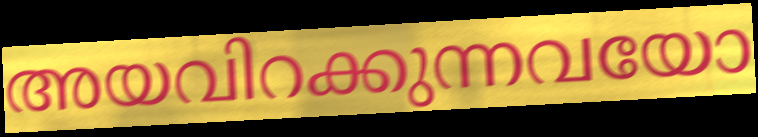
അയവിറക്കുന്നവയോ